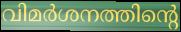
വിമർശനത്തിന്റെ